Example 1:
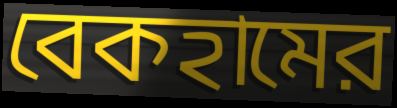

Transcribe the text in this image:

বেকহামের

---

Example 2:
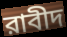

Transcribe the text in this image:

রাবীদ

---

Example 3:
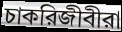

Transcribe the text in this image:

চাকরিজীবীরা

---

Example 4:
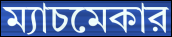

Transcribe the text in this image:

ম্যাচমেকার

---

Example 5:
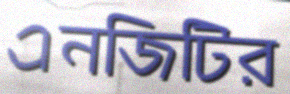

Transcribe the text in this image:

এনজিটির